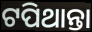
ଟପିଥାନ୍ତା